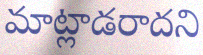
మాట్లాడరాదని